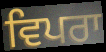
ਵਿਪਰਾ